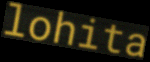
lohita